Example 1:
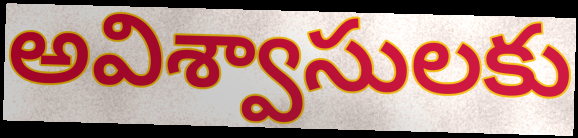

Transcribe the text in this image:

అవిశ్వాసులకు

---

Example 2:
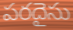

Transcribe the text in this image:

పరదైసు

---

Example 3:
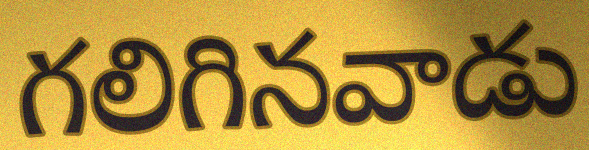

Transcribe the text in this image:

గలిగినవాడు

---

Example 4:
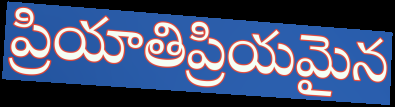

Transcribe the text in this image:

ప్రియాతిప్రియమైన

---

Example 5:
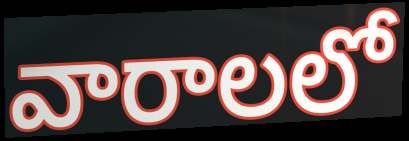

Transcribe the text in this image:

వారాలలో